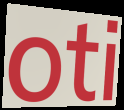
oti